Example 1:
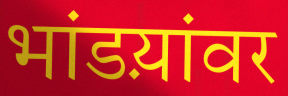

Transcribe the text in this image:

भांडय़ांवर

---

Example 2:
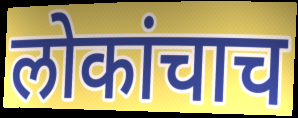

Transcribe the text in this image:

लोकांचाच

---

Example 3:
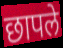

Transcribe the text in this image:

छापले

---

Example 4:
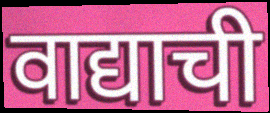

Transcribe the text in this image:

वाद्याची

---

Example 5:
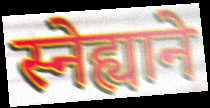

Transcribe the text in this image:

स्नेह्याने